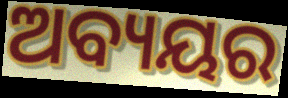
ଅବ୍ୟୟର